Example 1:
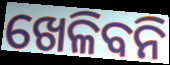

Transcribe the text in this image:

ଖେଳିବନି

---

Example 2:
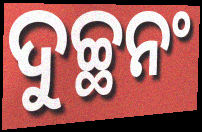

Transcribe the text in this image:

ଦୁଚ୍ଛନଂ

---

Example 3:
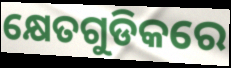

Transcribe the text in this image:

କ୍ଷେତଗୁଡିକରେ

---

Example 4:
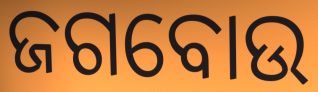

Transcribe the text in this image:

ଜଗବୋଉ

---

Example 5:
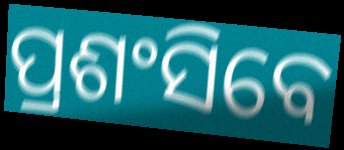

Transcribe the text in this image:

ପ୍ରଶଂସିବେ